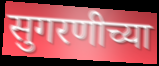
सुगरणीच्या